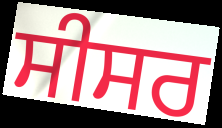
ਸੀਸਰ